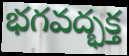
భగవద్భక్త